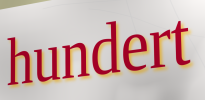
hundert